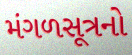
મંગળસૂત્રનો